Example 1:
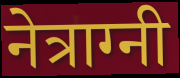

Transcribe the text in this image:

नेत्राग्नी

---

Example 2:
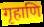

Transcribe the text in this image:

गृहाणि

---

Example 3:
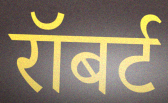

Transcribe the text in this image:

रॉबर्ट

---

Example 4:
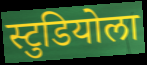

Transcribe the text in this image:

स्टुडियोला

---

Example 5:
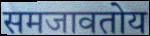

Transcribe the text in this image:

समजावतोय